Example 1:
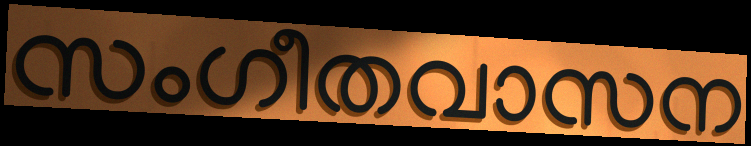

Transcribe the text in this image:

സംഗീതവാസന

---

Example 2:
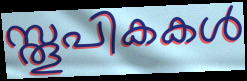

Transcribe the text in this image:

സ്തൂപികകൾ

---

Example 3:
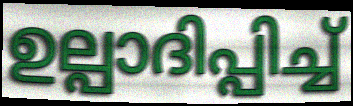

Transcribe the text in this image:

ഉല്പാദിപ്പിച്ച്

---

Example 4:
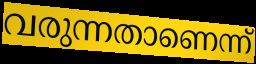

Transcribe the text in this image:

വരുന്നതാണെന്ന്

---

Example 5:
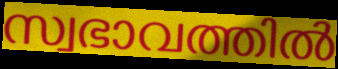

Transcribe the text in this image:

സ്വഭാവത്തിൽ